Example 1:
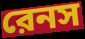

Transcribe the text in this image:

রেনস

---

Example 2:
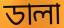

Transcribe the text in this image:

ডালা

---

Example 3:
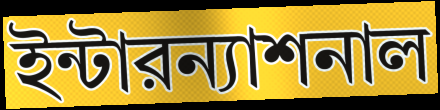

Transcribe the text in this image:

ইন্টারন্যাশনাল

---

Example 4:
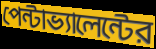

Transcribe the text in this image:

পেন্টাভ্যালেন্টের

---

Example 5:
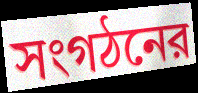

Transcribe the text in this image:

সংগঠনের